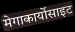
मेगाकार्योसाइट